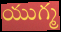
యుగ్మ